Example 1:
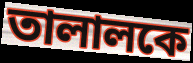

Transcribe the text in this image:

তালালকে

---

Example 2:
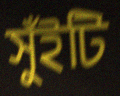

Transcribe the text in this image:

সুঁইটি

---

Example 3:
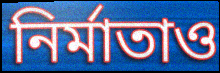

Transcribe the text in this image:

নির্মাতাও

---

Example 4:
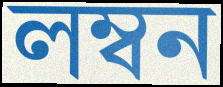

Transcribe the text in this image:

লম্বন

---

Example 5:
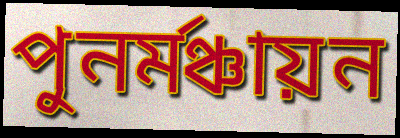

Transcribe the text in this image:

পুনর্মঞ্চায়ন